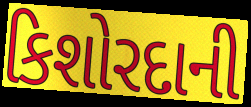
કિશોરદાની